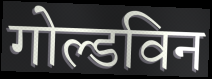
गोल्डविन